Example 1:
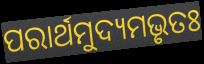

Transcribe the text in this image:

ପରାର୍ଥମୁଦ୍ୟମଭୃତଃ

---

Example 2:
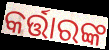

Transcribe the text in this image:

କର୍ତ୍ତାରଙ୍କ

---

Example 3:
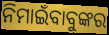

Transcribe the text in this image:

ନିମାଇଁବାବୁଙ୍କର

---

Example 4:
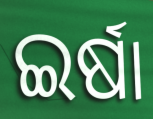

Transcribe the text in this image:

ଇର୍ଷା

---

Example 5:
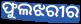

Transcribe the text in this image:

ଫୁଲଝରୀର